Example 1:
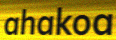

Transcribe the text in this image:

ahakoa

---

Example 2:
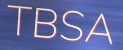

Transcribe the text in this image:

TBSA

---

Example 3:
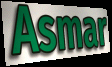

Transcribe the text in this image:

Asmar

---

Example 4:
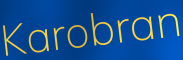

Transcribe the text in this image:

Karobran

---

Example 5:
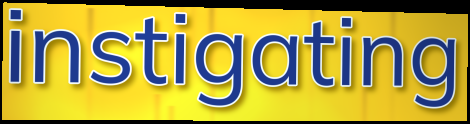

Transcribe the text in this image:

instigating